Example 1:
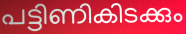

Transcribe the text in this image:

പട്ടിണികിടക്കും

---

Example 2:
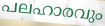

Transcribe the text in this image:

പലഹാരവും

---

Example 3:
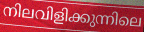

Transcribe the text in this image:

നിലവിളിക്കുന്നിലെ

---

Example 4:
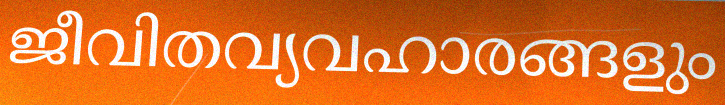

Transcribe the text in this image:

ജീവിതവ്യവഹാരങ്ങളും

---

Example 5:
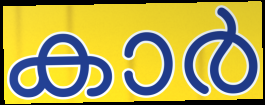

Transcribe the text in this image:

കാർ